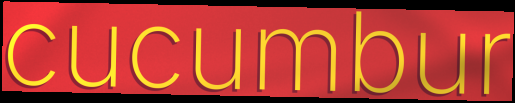
cucumbur